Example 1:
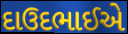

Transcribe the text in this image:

દાઉદભાઈએ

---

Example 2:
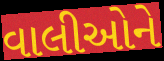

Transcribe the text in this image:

વાલીઓને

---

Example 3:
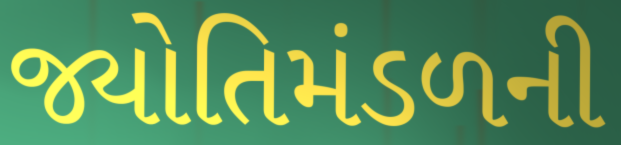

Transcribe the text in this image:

જ્યોતિમંડળની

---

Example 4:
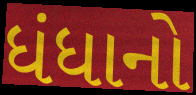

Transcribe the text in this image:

ધંધાનો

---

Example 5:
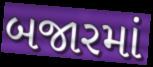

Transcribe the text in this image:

બજારમાં